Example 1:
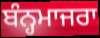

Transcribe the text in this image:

ਬੰਨ੍ਹਮਾਜਰਾ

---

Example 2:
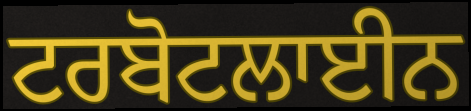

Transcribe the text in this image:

ਟਰਬੋਟਲਾਈਨ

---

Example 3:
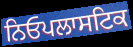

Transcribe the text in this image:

ਨਿਓਪਲਾਸਟਿਕ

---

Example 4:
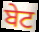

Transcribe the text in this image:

ਬੇਟ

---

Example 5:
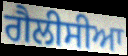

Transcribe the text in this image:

ਗੈਲੀਸੀਆ